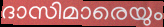
ദാസിമാരെയും